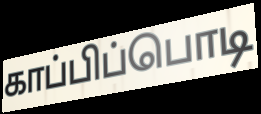
காப்பிப்பொடி